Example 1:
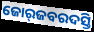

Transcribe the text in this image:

ଜୋର୍‍ଜବରଦସ୍ତି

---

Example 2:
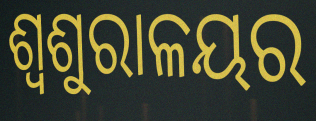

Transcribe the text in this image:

ଶ୍ୱଶୁରାଳୟର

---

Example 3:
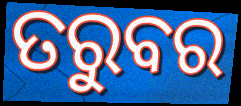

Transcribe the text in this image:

ତରୁବର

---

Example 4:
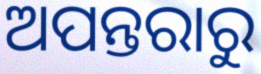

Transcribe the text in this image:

ଅପନ୍ତରାରୁ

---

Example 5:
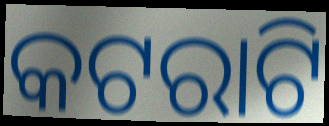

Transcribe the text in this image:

କଟରାଟି